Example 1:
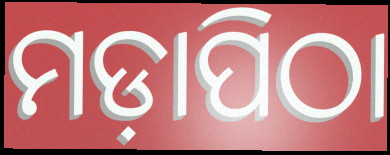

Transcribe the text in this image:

ମଡ଼ାପିଠା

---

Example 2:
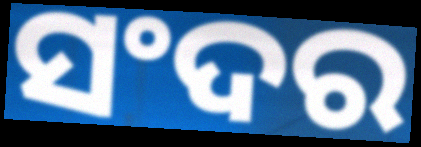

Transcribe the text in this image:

ସଂଦର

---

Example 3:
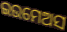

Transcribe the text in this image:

ଇଉମେଅସ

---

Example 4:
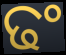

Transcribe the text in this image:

ଢଂ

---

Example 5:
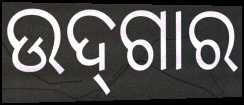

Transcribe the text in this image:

ଉଦ୍‌ଗାର